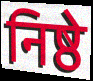
निष्ठे